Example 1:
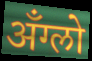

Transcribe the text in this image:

अँग्लो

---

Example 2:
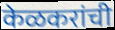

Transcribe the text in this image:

केळकरांची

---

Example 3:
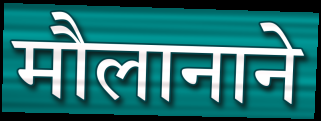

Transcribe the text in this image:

मौलानाने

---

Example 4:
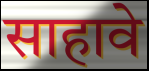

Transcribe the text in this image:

साहावे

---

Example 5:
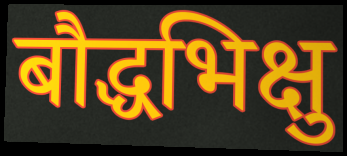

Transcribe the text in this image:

बौद्धभिक्षु